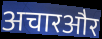
अचारऔर